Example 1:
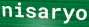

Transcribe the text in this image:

nisaryo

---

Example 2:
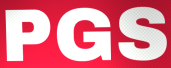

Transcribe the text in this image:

PGS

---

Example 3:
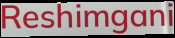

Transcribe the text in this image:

Reshimgani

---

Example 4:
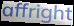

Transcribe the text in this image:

affright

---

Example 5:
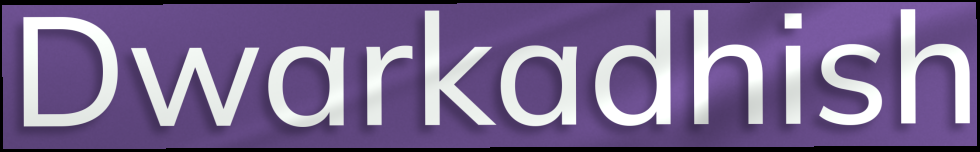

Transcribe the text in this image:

Dwarkadhish